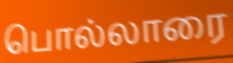
பொல்லாரை